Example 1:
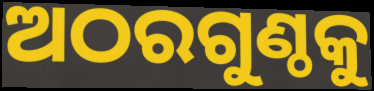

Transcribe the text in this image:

ଅଠରଗୁଣ୍ଠକୁ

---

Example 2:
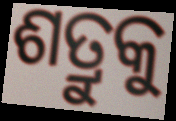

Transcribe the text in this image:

ଶତ୍ରୁକୁ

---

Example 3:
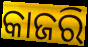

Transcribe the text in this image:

କାଜରି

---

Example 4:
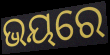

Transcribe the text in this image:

ଭୟରେ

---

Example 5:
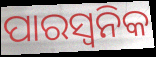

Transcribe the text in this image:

ପାରସ୍ୱନିକ